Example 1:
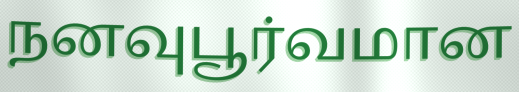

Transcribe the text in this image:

நனவுபூர்வமான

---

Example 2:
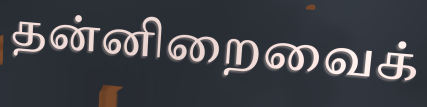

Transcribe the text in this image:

தன்னிறைவைக்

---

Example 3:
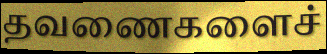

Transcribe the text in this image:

தவணைகளைச்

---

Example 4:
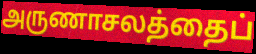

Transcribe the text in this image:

அருணாசலத்தைப்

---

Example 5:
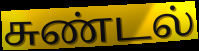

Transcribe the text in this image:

சுண்டல்